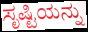
ಸೃಷ್ಟಿಯನ್ನು